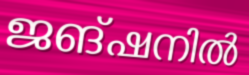
ജങ്ഷനിൽ